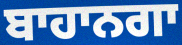
ਬਾਹਾਨਗਾ